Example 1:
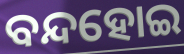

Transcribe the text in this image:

ବନ୍ଦହୋଇ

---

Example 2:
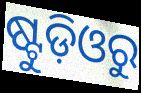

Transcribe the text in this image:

ଷ୍ଟୁଡ଼ିଓରୁ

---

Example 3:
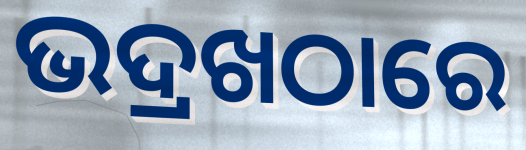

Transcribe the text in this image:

ଭଦ୍ରଖଠାରେ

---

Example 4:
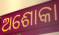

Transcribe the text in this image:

ଅଶୋକା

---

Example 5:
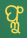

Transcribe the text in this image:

ଫ୍ଳୁ